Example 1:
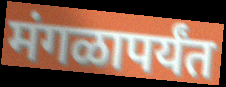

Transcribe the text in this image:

मंगळापर्यंत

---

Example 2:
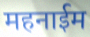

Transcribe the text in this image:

महनाईम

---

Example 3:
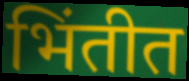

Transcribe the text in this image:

भिंतीत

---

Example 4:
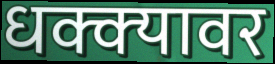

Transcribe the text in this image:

धक्क्यावर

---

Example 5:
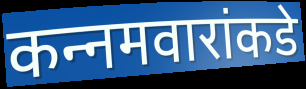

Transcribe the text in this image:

कन्नमवारांकडे